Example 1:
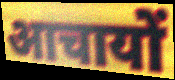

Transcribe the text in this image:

आचायों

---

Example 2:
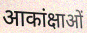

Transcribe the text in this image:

आकांक्षाओं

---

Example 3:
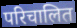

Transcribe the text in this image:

परिचालित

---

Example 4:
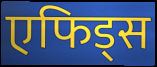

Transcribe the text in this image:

एफिड्स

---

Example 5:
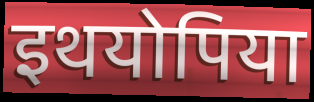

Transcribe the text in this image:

इथयोपिया